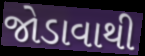
જોડાવાથી